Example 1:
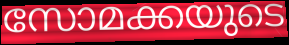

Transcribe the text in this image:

സോമക്കയുടെ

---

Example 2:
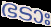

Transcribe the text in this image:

ഭടാഃ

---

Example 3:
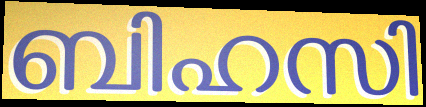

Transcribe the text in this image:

ബിഹസി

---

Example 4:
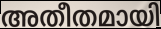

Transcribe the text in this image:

അതീതമായി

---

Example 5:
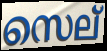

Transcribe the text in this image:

സെല്